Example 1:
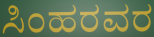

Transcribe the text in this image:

ಸಿಂಹರವರ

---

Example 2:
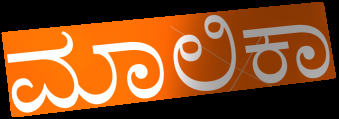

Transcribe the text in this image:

ಮಾಲಿಕಾ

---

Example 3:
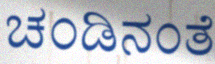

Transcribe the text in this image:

ಚಂಡಿನಂತೆ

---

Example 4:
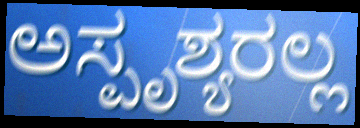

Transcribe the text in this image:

ಅಸ್ಪೃಶ್ಯರಲ್ಲ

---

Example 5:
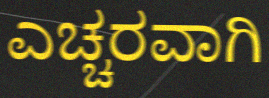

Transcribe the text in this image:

ಎಚ್ಚರವಾಗಿ